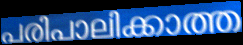
പരിപാലിക്കാത്ത